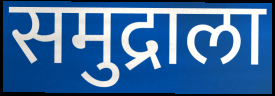
समुद्राला